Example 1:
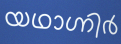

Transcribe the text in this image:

യഥാഗ്നിർ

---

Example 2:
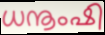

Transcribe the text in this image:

ധനൂംഷി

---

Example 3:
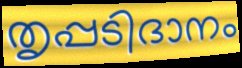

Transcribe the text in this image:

തൃപ്പടിദാനം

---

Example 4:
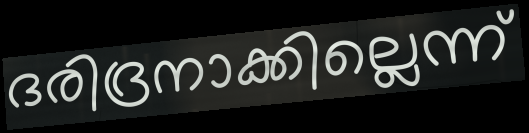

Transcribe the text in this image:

ദരിദ്രനാക്കില്ലെന്ന്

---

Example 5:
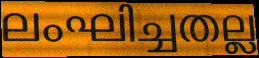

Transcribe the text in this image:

ലംഘിച്ചതല്ല